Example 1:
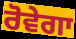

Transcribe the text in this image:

ਰੋਵੇਗਾ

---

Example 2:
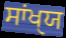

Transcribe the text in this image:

ਸਾਂਖੑਯ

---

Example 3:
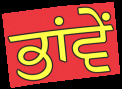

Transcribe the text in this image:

ਭਾਂਵੇਂ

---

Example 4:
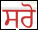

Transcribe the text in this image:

ਸਰੋ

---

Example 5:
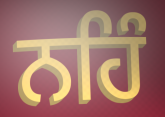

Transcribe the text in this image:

ਨਹਿੰ